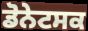
ਡੋਨੇਟਸਕ